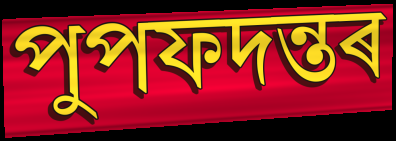
পুপফদন্তৰ